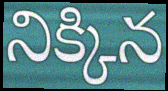
నిక్కిన